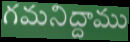
గమనిద్దాము